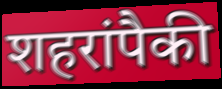
शहरांपैकी